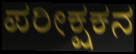
ಪರೀಕ್ಷಕನ